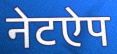
नेटऐप